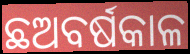
ଛଅବର୍ଷକାଳ